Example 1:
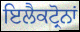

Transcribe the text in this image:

ਇਲੈਕਟ੍ਰੋਨਾਂ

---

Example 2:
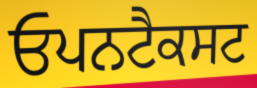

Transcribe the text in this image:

ਓਪਨਟੈਕਸਟ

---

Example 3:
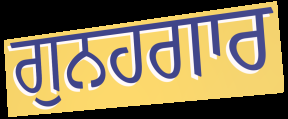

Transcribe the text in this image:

ਗੁਨਹਗਾਰ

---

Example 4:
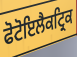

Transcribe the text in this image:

ਫੋਟੋਇਲੈਕਟ੍ਰਿਕ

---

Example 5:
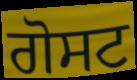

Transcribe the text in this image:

ਗੋਸਟ